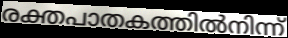
രക്തപാതകത്തിൽനിന്ന്